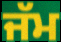
ਜੱਮ